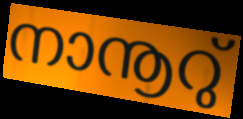
നാനൂറു്